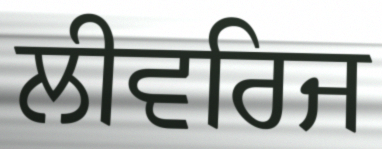
ਲੀਵਰਿਜ